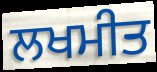
ਲਖਮੀਤ